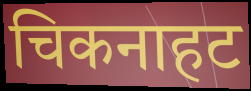
चिकनाहट